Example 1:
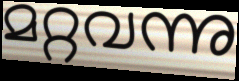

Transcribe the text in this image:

മറ്റവന്നു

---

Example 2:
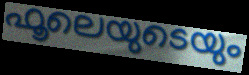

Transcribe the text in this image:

ഫൂലെയുടെയും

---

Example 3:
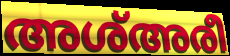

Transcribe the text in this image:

അശ്അരീ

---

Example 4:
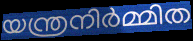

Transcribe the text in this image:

യന്ത്രനിർമ്മിത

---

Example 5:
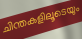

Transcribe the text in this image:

ചിന്തകളിലൂടെയും